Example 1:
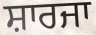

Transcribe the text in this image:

ਸ਼ਾਰਜਾ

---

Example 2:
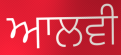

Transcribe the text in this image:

ਆਲਵੀ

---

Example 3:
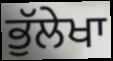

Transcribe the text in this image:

ਭੁੱਲੇਖਾ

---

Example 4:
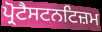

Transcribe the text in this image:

ਪ੍ਰੋਟੈਸਟਨਟਿਜ਼ਮ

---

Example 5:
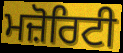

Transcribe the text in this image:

ਮਜ਼ੋਰਿਟੀ